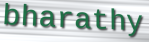
bharathy